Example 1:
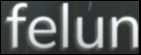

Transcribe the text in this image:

felun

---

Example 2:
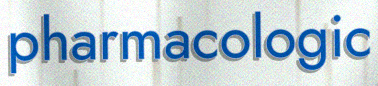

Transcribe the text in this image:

pharmacologic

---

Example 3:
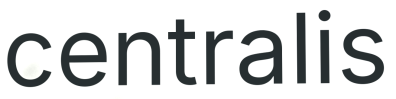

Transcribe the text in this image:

centralis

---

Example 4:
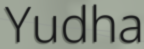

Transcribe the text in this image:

Yudha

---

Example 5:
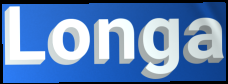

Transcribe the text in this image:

Longa